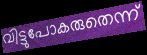
വിട്ടുപോകരുതെന്ന്